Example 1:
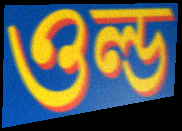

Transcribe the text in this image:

ওল্ড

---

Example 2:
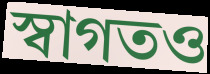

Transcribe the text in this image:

স্বাগতও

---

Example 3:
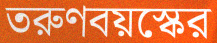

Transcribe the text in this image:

তরুণবয়স্কের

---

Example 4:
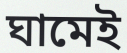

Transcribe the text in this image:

ঘামেই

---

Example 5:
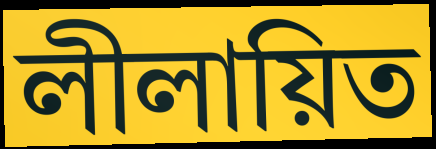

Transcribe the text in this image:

লীলায়িত